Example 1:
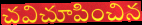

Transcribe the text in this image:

చవిచూపించిన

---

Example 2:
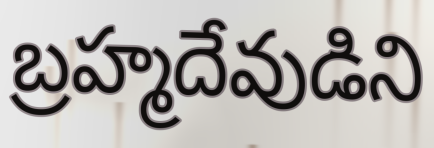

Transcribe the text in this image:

బ్రహ్మదేవుడిని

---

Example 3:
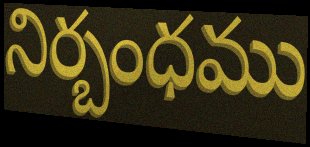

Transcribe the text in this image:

నిర్బంధము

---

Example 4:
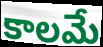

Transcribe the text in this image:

కాలమే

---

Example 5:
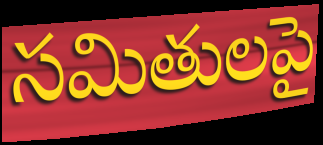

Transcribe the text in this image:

సమితులపై